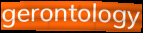
gerontology